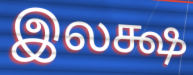
இலக்ஷ